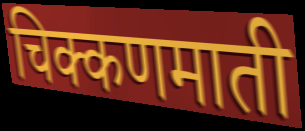
चिक्कणमाती